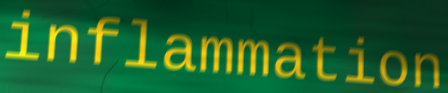
inflammation